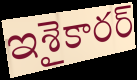
ఇశైకారర్